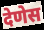
देणेस